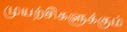
முயற்சிகளுக்கும்